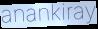
anankiray